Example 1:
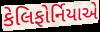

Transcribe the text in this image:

કેલિફોર્નિયાએ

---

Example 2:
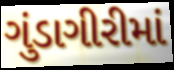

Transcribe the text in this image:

ગુંડાગીરીમાં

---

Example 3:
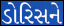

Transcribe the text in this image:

ડોરિસને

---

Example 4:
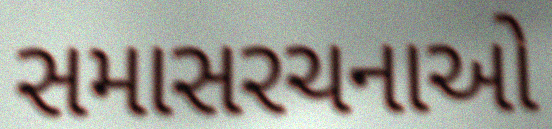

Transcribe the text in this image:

સમાસરચનાઓ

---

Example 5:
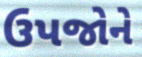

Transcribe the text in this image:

ઉપજોને